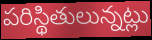
పరిస్థితులున్నట్లు